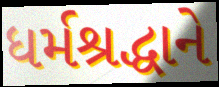
ધર્મશ્રદ્ધાને